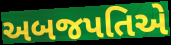
અબજપતિએ